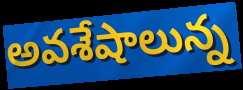
అవశేషాలున్న